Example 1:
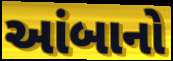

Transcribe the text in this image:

આંબાનો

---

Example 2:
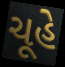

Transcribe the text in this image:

ચૂહે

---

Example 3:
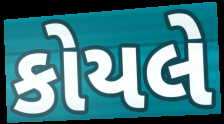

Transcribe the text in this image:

કોયલે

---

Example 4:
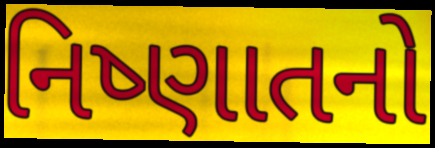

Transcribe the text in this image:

નિષ્ણાતનો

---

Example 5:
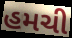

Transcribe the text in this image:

હમચી